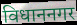
विधाननगर